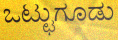
ಒಟ್ಟುಗೂಡು